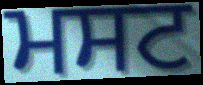
ਮਸਟ